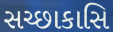
સચ્છાકાસિ